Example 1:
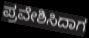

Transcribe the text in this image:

ಪ್ರವೇಶಿಸಿದಾಗ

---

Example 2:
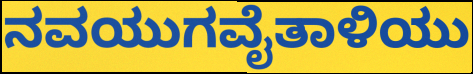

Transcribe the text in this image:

ನವಯುಗವೈತಾಳಿಯು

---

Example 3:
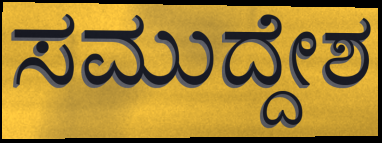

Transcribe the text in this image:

ಸಮುದ್ದೇಶ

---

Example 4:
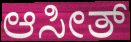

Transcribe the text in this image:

ಆಸೀತ್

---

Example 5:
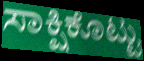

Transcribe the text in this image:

ಸಾಕ್ಷಿಕೊಟ್ಟು